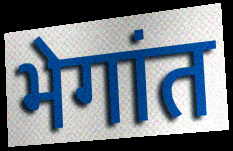
भेगांत